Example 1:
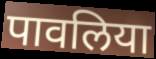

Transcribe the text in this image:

पावलिया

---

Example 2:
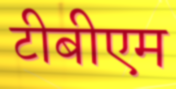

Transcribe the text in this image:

टीबीएम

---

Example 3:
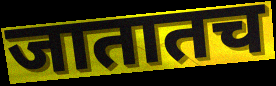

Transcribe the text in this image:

जातातच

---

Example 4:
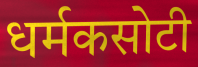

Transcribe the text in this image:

धर्मकसोटी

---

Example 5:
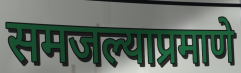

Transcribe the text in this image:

समजल्याप्रमाणे